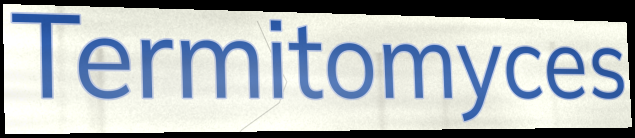
Termitomyces